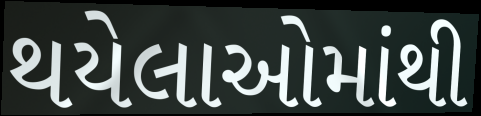
થયેલાઓમાંથી